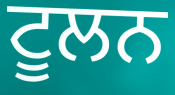
ਟੂਲਨ